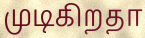
முடிகிறதா